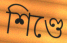
শিণ্ডে